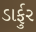
ડાર્ફુર